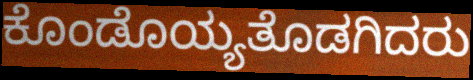
ಕೊಂಡೊಯ್ಯತೊಡಗಿದರು